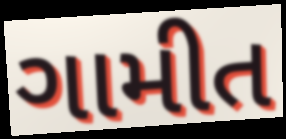
ગામીત